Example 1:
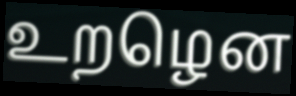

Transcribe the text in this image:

உறழென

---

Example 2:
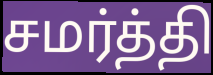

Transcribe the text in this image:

சமர்த்தி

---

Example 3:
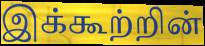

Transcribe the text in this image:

இக்கூற்றின்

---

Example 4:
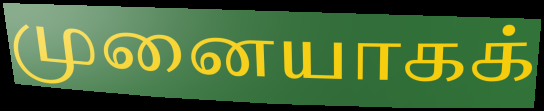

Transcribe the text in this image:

முனையாகக்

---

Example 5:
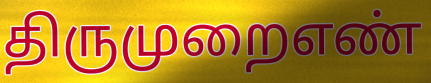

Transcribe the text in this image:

திருமுறைஎண்